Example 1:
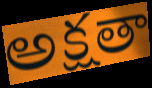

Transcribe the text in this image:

అక్షతా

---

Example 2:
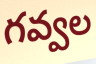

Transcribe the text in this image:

గవ్వల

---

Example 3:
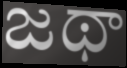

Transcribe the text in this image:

జథా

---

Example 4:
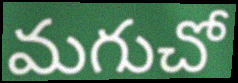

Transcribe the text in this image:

మగుచో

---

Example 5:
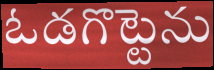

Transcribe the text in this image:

ఓడగొట్టెను